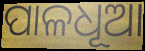
ପାଳଧୂଆ